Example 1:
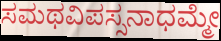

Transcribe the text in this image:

ಸಮಥವಿಪಸ್ಸನಾಧಮ್ಮೇ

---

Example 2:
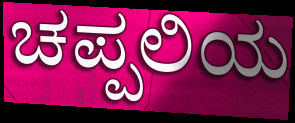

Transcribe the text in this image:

ಚಪ್ಪಲಿಯ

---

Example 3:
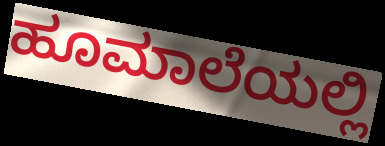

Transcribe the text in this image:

ಹೂಮಾಲೆಯಲ್ಲಿ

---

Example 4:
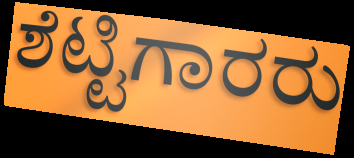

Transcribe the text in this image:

ಶೆಟ್ಟಿಗಾರರು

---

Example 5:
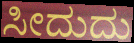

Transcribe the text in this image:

ಸೀದುದು